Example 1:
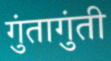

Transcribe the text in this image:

गुंतागुंती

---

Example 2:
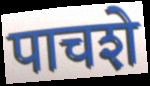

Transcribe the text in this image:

पाचशे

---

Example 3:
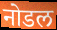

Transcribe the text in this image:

नोडल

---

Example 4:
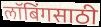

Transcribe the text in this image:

लॉबिंगसाठी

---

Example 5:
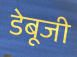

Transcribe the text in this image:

डेबूजी